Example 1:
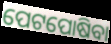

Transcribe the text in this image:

ପେଟପୋଷିବା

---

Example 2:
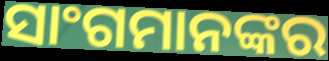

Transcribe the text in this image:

ସାଂଗମାନଙ୍କର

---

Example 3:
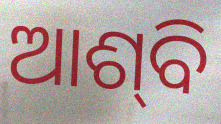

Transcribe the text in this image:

ଆଶ୍‍ବି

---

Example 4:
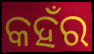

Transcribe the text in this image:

କହଁର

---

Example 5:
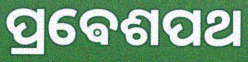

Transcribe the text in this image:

ପ୍ରଵେଶପଥ